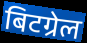
बिटग्रेल